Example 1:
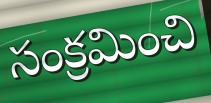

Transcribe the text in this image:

సంక్రమించి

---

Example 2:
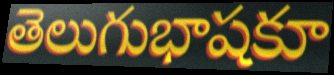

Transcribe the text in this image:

తెలుగుభాషకూ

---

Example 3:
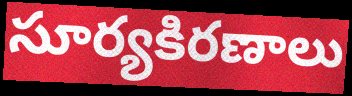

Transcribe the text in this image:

సూర్యకిరణాలు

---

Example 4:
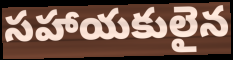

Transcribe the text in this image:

సహాయకులైన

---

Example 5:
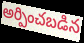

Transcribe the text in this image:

అర్పించబడిన